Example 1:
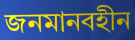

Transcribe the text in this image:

জনমানবহীন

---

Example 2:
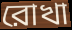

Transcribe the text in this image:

রোখা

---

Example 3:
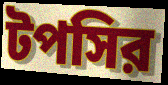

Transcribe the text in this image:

টপসির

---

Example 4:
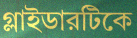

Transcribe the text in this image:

গ্লাইডারটিকে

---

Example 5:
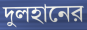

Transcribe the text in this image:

দুলহানের